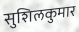
सुशिलकुमार